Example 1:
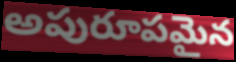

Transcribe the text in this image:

అపురూపమైన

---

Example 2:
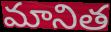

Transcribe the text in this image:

మానిత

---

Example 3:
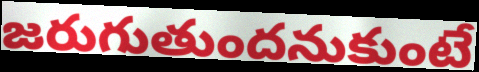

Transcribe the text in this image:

జరుగుతుందనుకుంటే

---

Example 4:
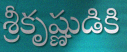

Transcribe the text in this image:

శ్రీకృష్ణుడికి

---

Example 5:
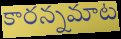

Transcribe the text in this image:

కారన్నమాట